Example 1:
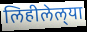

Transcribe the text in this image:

लिहीलेल्या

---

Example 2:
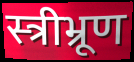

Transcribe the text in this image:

स्त्रीभ्रूण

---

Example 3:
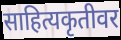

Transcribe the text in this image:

साहित्यकृतीवर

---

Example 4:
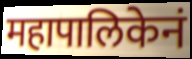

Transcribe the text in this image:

महापालिकेनं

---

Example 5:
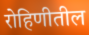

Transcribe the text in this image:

रोहिणीतील